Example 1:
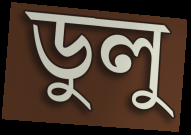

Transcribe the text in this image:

ডুলু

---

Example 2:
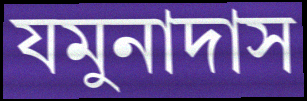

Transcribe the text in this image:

যমুনাদাস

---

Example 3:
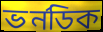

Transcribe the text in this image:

ভর্নডিক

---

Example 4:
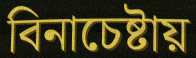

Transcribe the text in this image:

বিনাচেষ্টায়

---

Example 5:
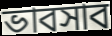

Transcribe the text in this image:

ভাবসাব